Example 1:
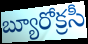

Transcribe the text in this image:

బ్యూరోక్రసీ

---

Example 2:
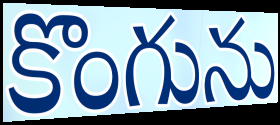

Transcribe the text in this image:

కొంగును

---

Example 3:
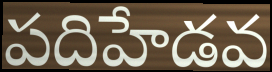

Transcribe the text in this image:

పదిహేడవ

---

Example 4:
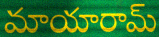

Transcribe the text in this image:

మాయారామ్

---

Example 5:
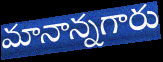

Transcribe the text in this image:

మానాన్నగారు